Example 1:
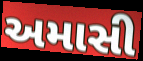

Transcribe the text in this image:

અમાસી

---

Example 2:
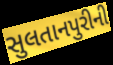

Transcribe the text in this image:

સુલતાનપુરીની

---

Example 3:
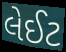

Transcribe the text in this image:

લેઈટ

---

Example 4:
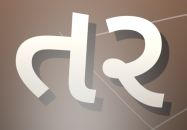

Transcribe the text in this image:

તર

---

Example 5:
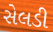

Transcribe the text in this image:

સેલડી